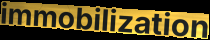
immobilization